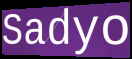
Sadyo